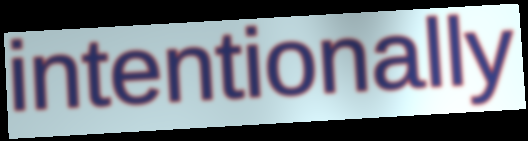
intentionally